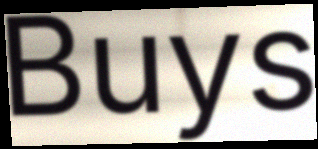
Buys